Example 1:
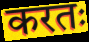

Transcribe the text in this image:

करतः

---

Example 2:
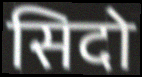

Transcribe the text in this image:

सिदो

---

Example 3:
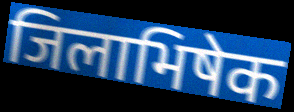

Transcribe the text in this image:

जिलाभिषेक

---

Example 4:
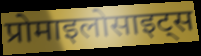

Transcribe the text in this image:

प्रोमाइलोसाइट्स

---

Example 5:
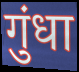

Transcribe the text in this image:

गुंधा